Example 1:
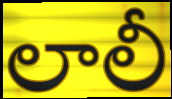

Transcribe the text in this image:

లాలీ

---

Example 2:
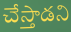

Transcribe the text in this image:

చేస్తాడని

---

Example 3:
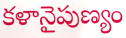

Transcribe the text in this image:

కళానైపుణ్యం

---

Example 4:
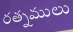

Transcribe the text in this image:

రత్నములు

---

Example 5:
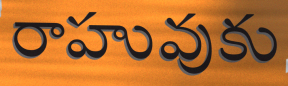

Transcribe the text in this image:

రాహువుకు